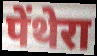
पेंथेरा